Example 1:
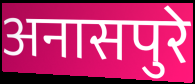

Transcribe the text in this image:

अनासपुरे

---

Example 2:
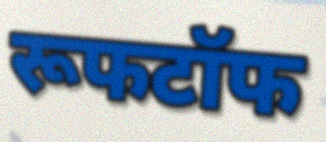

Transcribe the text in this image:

रूफटॉफ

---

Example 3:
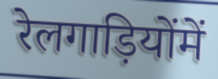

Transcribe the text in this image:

रेलगाड़ियोंमें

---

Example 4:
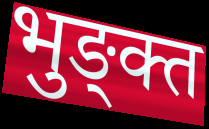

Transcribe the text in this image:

भुङ्क्त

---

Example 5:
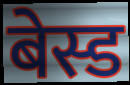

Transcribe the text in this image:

बेस्ड